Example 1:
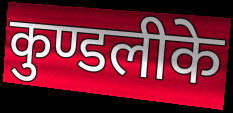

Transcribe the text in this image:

कुण्डलीके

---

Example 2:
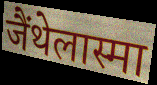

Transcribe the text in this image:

जैंथेलास्मा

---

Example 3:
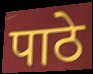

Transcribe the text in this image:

पाठे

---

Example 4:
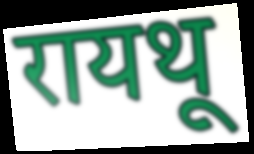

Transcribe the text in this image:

रायथू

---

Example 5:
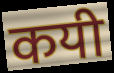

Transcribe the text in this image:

कयी